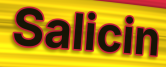
Salicin